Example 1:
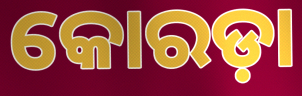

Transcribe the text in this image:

କୋରଡ଼ା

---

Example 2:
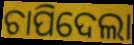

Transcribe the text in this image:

ଚାପିଦେଲା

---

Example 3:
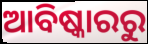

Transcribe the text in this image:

ଆବିଷ୍କାରରୁ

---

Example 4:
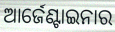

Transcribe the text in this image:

ଆର୍ଜେଣ୍ଟାଇନାର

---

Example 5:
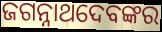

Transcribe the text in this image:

ଜଗନ୍ନାଥଦେବଙ୍କର